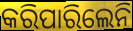
କରିପାରିଲେନି